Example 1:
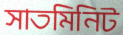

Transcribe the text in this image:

সাতমিনিট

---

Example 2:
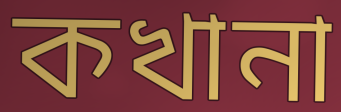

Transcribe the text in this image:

কখানা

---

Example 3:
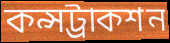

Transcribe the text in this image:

কন্সট্রাকশন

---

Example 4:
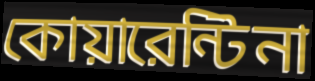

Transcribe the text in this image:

কোয়ারেন্টিনা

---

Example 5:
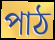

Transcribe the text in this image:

পাঠ